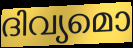
ദിവ്യമൊ